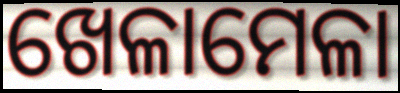
ଖେଳାମେଳା